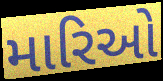
મારિઓ